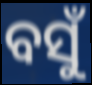
ବସୁଁ